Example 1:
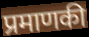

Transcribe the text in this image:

प्रमाणकी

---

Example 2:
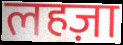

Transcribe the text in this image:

लहज़ा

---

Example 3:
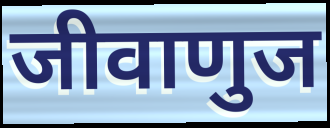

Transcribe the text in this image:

जीवाणुज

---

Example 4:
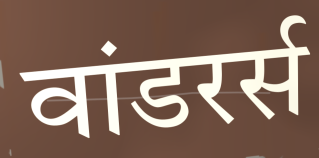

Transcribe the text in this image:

वांडरर्स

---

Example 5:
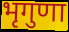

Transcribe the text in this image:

भृगुणा